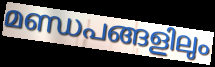
മണ്ഡപങ്ങളിലും